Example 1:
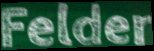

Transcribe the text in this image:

Felder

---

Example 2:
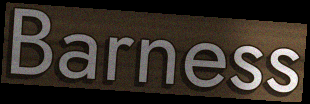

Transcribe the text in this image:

Barness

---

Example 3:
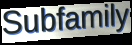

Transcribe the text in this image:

Subfamily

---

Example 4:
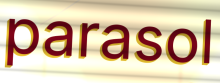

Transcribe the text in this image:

parasol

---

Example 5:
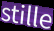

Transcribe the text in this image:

stille